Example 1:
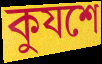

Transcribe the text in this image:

কুযশে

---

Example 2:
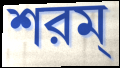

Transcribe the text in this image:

শরম্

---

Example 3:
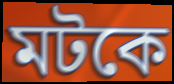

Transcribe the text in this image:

মটকে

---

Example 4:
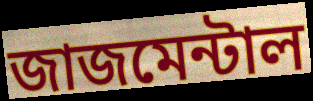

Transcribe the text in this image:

জাজমেন্টাল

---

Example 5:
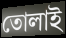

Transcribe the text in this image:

তোলাই